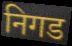
निगड